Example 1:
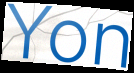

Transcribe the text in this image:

Yon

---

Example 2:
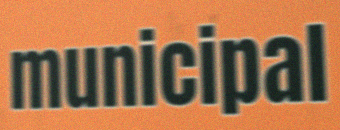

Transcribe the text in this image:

municipal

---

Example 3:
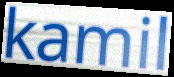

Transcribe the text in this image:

kamil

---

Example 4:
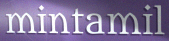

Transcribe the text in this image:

mintamil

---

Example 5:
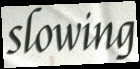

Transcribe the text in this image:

slowing